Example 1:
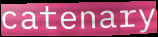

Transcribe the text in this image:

catenary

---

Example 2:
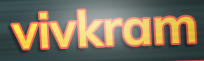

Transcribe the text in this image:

vivkram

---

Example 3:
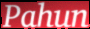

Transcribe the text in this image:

Pahun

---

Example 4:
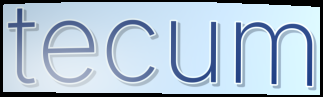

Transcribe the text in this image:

tecum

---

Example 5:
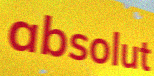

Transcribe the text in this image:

absolut